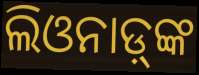
ଲିଓନାଡ଼୍‌ଙ୍କ